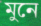
মুনে